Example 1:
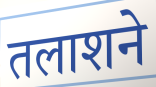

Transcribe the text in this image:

तलाशने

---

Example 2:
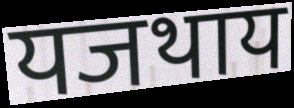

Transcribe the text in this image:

यजथाय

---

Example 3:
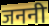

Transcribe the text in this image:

जननी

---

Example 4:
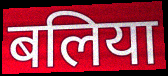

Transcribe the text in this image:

बलिया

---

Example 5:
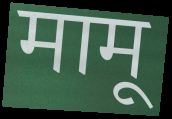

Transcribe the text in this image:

मामू